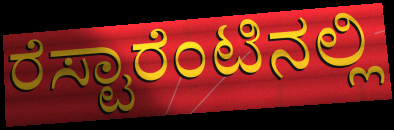
ರೆಸ್ಟಾರೆಂಟಿನಲ್ಲಿ